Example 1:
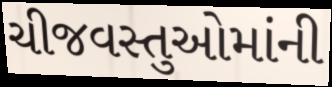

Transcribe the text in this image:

ચીજવસ્તુઓમાંની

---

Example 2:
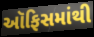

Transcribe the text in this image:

ઑફિસમાંથી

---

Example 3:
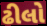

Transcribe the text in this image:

ઢીલો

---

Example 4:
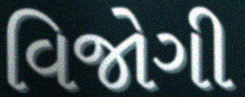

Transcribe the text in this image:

વિજોગી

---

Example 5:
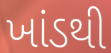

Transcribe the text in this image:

ખાંડથી